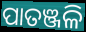
ପାତଞ୍ଜଳି